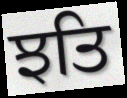
ਝਤਿ